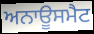
ਅਨਾਊਸਮੈਟ